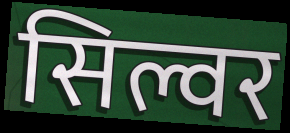
सिल्वर